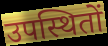
उपस्थितों